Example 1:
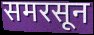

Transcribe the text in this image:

समरसून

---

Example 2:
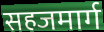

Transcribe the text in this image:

सहजमार्ग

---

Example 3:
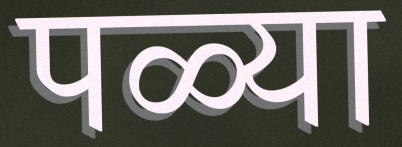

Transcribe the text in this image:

पळ्या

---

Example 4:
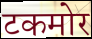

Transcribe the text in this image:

टकमोर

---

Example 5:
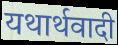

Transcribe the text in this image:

यथार्थवादी